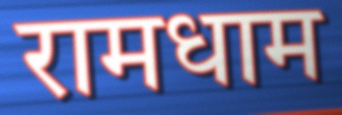
रामधाम